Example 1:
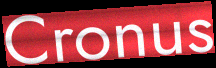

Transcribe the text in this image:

Cronus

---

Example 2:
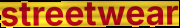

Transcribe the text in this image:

streetwear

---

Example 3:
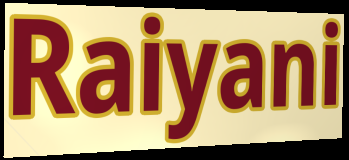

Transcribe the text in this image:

Raiyani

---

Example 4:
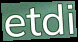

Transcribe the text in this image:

etdi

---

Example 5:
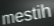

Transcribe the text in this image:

mestih